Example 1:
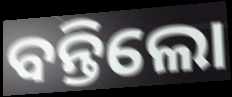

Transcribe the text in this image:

ବନ୍ତିଲୋ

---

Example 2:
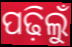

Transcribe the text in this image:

ପଢ଼ିଲୁଁ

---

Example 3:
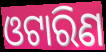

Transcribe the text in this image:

ଓଟାରିଣ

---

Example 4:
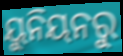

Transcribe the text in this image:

ୟୁନିୟନରୁ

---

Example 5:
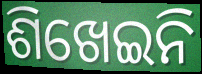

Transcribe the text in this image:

ଶିଖେଇନି